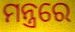
ମନ୍ତ୍ରରେ